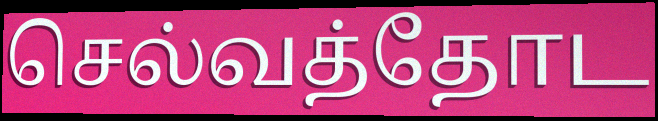
செல்வத்தோட